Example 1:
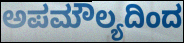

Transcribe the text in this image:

ಅಪಮೌಲ್ಯದಿಂದ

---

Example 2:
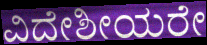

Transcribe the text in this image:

ವಿದೇಶೀಯರೇ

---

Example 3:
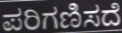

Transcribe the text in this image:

ಪರಿಗಣಿಸದೆ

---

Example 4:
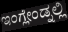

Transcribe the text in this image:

ಇಂಗ್ಲೇಂಡ್ನಲ್ಲಿ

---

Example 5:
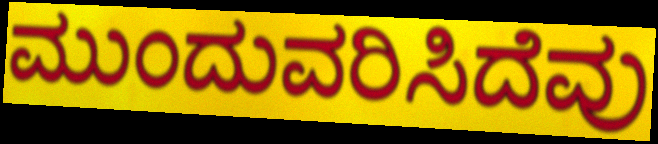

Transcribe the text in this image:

ಮುಂದುವರಿಸಿದೆವು